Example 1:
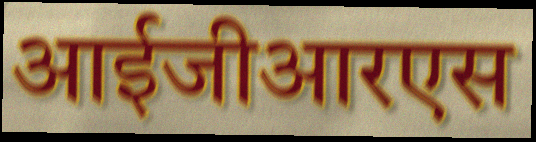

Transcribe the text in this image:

आईजीआरएस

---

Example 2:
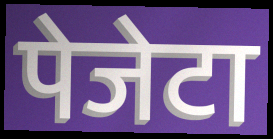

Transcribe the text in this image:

पेजेटा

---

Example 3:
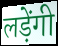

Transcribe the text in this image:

लड़ेंगी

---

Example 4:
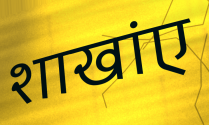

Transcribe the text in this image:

शाखांए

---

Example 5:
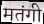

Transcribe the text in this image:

मतंगी